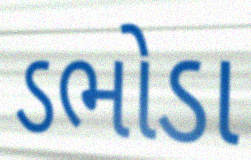
ડભોડા